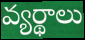
వ్యర్థాలు